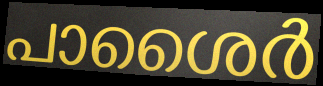
പാശൈർ